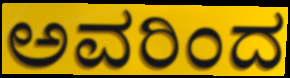
ಅವರಿಂದ